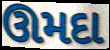
ઊમદા